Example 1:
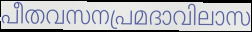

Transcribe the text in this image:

പീതവസനപ്രമദാവിലാസ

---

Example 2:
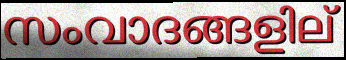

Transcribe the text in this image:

സംവാദങ്ങളില്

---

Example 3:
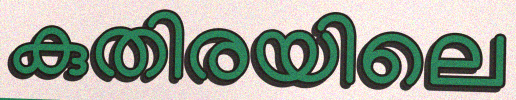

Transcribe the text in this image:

കുതിരയിലെ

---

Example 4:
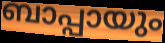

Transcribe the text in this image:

ബാപ്പായും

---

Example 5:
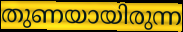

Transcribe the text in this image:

തുണയായിരുന്ന